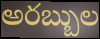
అరబ్బుల